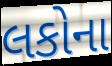
લકોના